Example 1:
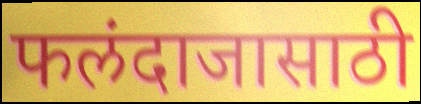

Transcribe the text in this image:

फलंदाजासाठी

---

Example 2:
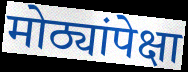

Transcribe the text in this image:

मोठ्यांपेक्षा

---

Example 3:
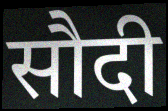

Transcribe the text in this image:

सौदी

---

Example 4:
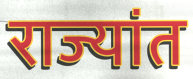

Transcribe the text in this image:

राज्यांत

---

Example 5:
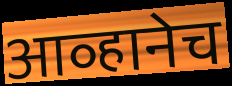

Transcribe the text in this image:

आव्हानेच